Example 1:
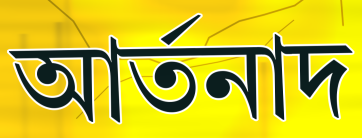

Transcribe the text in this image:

আর্তনাদ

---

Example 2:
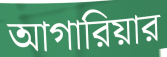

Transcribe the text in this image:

আগারিয়ার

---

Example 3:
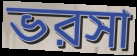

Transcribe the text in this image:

ভরসা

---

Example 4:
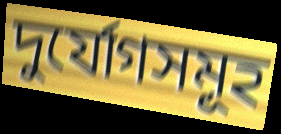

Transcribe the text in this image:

দুর্যোগসমূহ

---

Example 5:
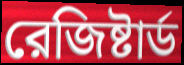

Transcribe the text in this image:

রেজিষ্টার্ড